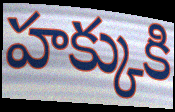
హక్కుకి